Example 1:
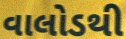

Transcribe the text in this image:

વાલોડથી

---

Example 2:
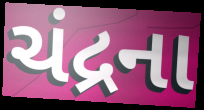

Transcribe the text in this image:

ચંદ્રના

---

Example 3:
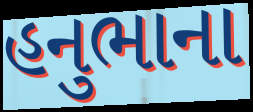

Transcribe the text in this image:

હનુભાના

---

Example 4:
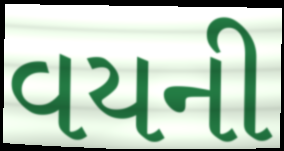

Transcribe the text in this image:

વયની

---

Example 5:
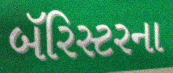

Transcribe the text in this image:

બૅરિસ્ટરના